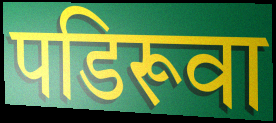
पडिरूवा